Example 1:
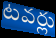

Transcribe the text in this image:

టవర్లు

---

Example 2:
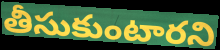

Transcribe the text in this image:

తీసుకుంటారని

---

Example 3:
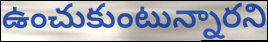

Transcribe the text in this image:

ఉంచుకుంటున్నారని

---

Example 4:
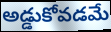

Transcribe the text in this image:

అడ్డుకోవడమే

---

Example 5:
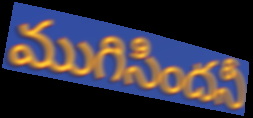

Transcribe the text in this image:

ముగిసిందనీ